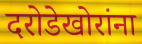
दरोडेखोरांना